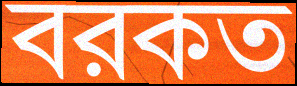
বরকত